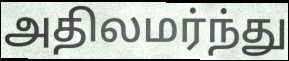
அதிலமர்ந்து